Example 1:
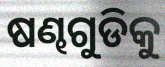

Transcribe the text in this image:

ଷଣ୍ଢଗୁଡିକୁ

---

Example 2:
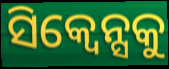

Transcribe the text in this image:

ସିକ୍ୱେନ୍ସକୁ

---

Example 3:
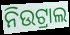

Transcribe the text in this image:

ନିଉଟ୍ରାଲ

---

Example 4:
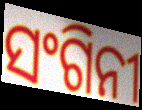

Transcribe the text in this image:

ସଂଗିନୀ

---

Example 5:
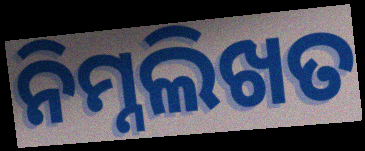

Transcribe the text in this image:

ନିମ୍ନଲିଖତ